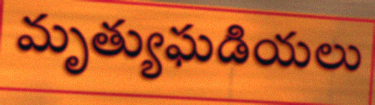
మృత్యుఘడియలు